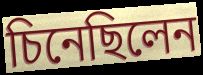
চিনেছিলেন